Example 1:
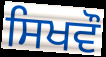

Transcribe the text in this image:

ਸਿਖਵੌ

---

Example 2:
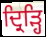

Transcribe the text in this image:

ਦ੍ਰਿੜ੍ਹਿ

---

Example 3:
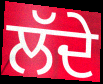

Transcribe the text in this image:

ਲੱਦੇ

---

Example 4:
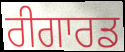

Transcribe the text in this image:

ਰੀਗਾਰਡ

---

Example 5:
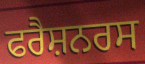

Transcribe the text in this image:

ਫਰੈਸ਼ਨਰਸ